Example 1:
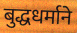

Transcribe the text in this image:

बुद्धधर्माने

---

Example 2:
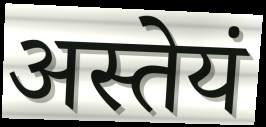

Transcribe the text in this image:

अस्तेयं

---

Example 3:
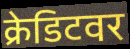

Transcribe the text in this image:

क्रेडिटवर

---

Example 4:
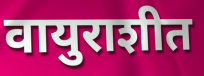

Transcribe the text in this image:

वायुराशीत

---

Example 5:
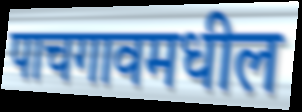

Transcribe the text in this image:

पाचगावमधील